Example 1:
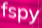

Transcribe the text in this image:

fspy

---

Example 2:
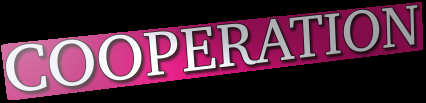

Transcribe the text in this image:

COOPERATION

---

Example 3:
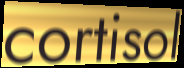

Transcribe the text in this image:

cortisol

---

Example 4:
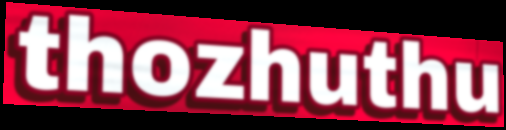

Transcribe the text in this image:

thozhuthu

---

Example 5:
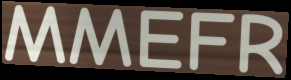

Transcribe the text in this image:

MMEFR